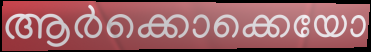
ആർക്കൊക്കെയോ